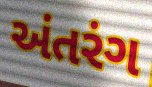
અંતરંગ